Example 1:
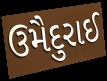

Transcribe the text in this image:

ઉમૈદુરાઈ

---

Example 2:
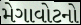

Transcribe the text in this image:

મેગાવોટનો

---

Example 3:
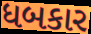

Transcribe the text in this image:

ધબકાર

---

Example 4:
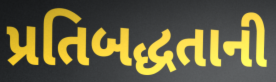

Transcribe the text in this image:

પ્રતિબદ્ધતાની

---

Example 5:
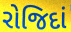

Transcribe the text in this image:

રોજિદાં